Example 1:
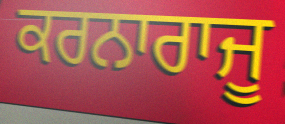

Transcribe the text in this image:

ਕਰਨਾਰਾਜੂ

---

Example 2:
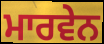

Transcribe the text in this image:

ਮਾਰਵੇਨ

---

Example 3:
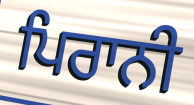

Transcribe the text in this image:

ਪਿਰਾਨੀ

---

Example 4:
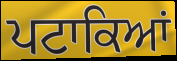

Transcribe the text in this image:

ਪਟਾਕਿਆਂ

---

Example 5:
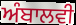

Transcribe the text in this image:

ਅੰਬਾਲਵੀ